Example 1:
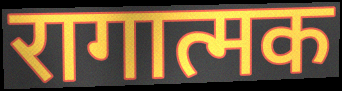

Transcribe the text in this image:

रागात्मक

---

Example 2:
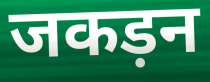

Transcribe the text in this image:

जकड़न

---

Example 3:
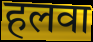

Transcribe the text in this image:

हलवा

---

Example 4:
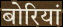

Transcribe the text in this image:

बोरियां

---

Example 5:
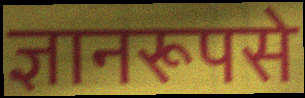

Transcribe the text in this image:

ज्ञानरूपसे